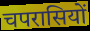
चपरासियों